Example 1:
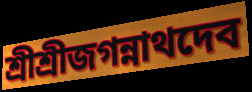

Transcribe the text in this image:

শ্রীশ্রীজগন্নাথদেব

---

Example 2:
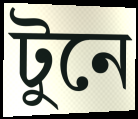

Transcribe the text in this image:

টুনে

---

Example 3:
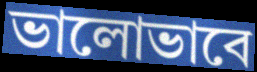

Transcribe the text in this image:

ভালোভাবে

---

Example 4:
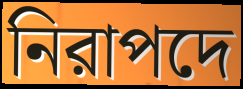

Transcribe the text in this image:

নিরাপদে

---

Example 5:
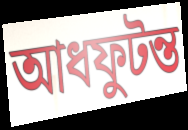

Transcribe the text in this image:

আধফুটন্ত